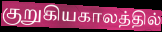
குறுகியகாலத்தில்